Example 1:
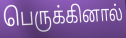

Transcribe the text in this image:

பெருக்கினால்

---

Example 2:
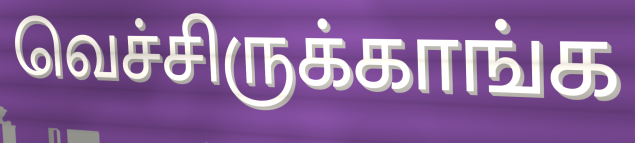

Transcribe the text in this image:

வெச்சிருக்காங்க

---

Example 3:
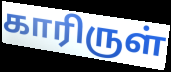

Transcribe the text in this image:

காரிருள்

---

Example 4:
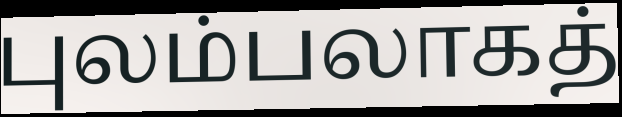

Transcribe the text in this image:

புலம்பலாகத்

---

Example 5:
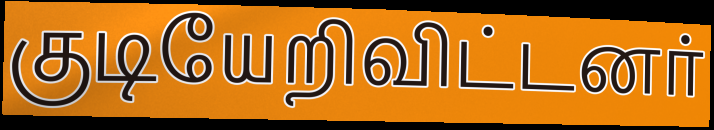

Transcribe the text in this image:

குடியேறிவிட்டனர்